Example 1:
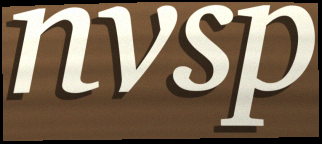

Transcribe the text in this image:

nvsp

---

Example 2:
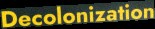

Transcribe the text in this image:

Decolonization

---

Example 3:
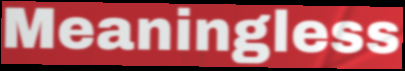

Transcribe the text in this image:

Meaningless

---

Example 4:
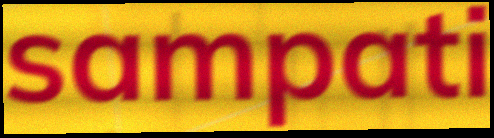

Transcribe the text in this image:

sampati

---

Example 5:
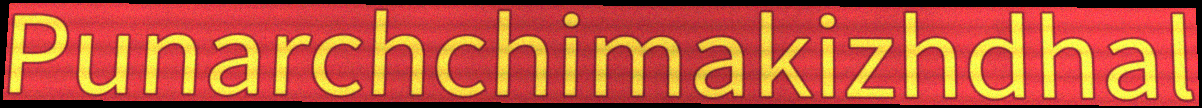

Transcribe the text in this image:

Punarchchimakizhdhal